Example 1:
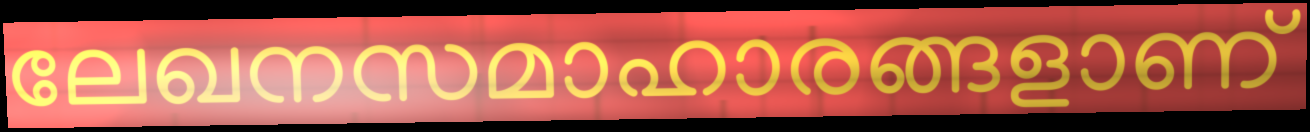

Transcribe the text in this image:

ലേഖനസമാഹാരങ്ങളാണ്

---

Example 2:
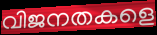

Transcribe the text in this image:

വിജനതകളെ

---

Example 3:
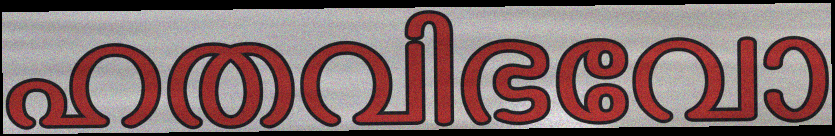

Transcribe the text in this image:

ഹതവിഭവോ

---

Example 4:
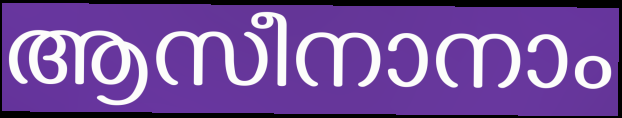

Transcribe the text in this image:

ആസീനാനാം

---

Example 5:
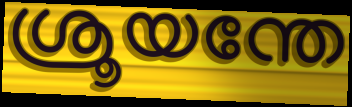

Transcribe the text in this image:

ശ്രൂയന്തേ